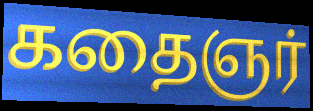
கதைஞர்